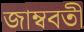
জাম্ববতী